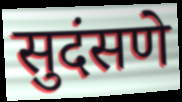
सुदंसणे